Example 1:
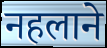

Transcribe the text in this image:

नहलाने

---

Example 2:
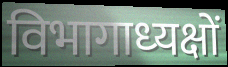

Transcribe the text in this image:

विभागाध्‍यक्षों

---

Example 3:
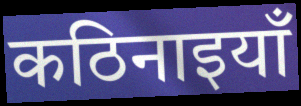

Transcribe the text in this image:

कठिनाइयाँ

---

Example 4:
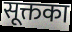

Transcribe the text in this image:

सूक्तका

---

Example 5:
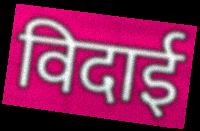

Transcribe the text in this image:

विदाई